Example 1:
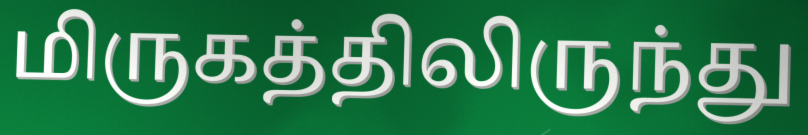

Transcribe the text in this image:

மிருகத்திலிருந்து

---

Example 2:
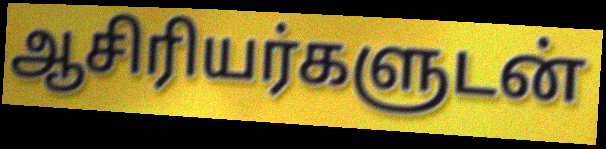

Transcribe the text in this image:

ஆசிரியர்களுடன்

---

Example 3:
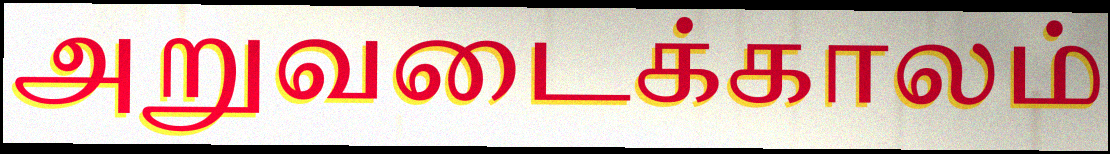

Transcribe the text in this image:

அறுவடைக்காலம்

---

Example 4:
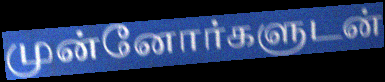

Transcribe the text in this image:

முன்னோர்களுடன்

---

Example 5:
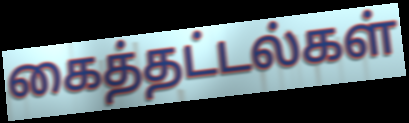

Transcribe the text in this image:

கைத்தட்டல்கள்